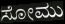
ಸೋಮು